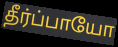
தீர்ப்பாயோ